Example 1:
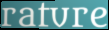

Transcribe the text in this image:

rature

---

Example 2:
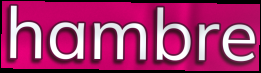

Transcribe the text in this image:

hambre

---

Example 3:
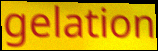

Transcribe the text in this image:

gelation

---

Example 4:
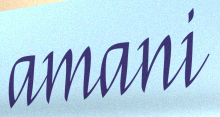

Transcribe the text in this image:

amani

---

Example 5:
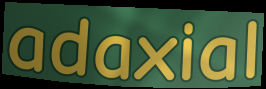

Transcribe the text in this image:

adaxial